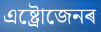
এষ্ট্ৰোজেনৰ